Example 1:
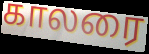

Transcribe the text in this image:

காலரை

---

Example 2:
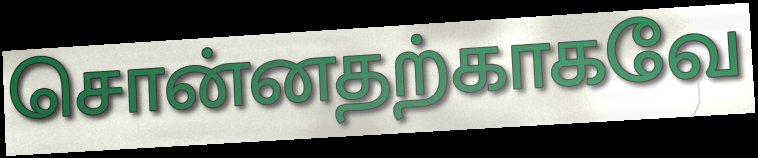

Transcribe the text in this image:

சொன்னதற்காகவே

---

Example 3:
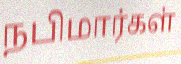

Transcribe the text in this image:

நபிமார்கள்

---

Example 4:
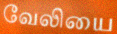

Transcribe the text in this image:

வேலியை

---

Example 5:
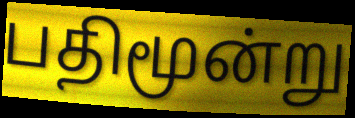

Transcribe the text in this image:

பதிமூன்று